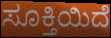
ಸೂಕ್ತಿಯಿದೆ